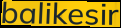
balikesir